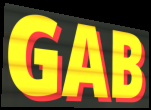
GAB